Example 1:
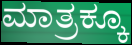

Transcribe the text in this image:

ಮಾತ್ರಕ್ಕೂ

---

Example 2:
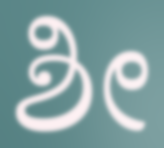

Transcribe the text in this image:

ಶೀ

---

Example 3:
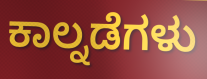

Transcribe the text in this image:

ಕಾಲ್ನಡೆಗಳು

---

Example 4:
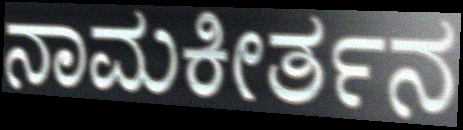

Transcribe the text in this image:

ನಾಮಕೀರ್ತನ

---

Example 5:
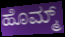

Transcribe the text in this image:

ಹೊಮ್ಮ್